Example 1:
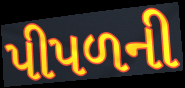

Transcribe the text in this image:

પીપળની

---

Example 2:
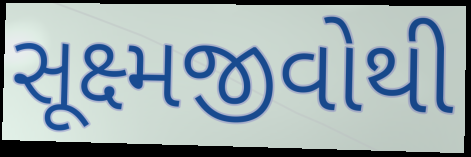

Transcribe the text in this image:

સૂક્ષ્મજીવોથી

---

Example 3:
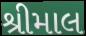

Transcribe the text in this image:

શ્રીમાલ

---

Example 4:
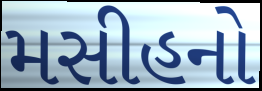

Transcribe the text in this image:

મસીહનો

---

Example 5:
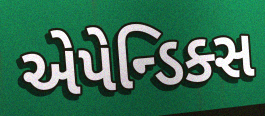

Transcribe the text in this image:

એપેન્ડિક્સ